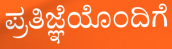
ಪ್ರತಿಜ್ಞೆಯೊಂದಿಗೆ